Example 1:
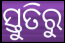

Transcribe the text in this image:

ସ୍ତୁତିରୁ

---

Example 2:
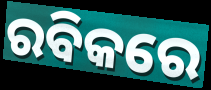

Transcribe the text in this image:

ରବିକରେ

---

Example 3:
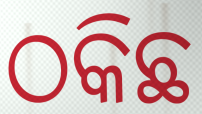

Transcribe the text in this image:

ଠକିଛ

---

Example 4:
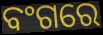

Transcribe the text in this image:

ବଂଗରେ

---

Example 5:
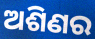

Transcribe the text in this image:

ଅଶିଣର